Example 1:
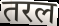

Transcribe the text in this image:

तरल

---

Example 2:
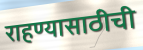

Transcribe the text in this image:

राहण्यासाठीची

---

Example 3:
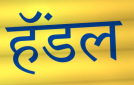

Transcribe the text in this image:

हॅंडल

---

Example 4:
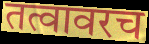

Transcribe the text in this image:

तत्वावरच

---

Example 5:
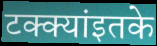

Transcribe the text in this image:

टक्क्यांइतके